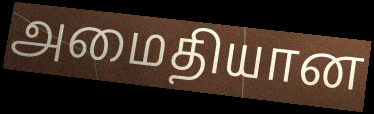
அமைதியான